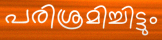
പരിശ്രമിച്ചിട്ടും